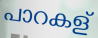
പാറകള്